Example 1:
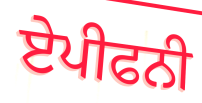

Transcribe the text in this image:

ਏਪੀਫਨੀ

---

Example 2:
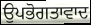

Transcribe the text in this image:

ਉਪਭੋਗਤਾਵਾਦ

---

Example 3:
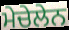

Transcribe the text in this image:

ਮੇਚੇਲੇਨ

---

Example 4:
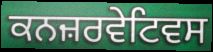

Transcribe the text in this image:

ਕਨਜ਼ਰਵੇਟਿਵਸ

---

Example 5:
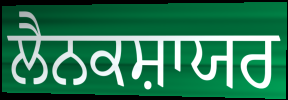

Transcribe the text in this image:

ਲੈਨਕਸ਼ਾਯਰ